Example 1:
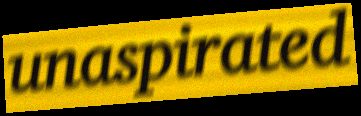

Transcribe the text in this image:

unaspirated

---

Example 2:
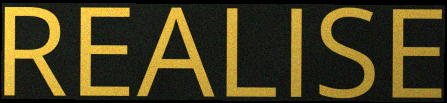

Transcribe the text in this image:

REALISE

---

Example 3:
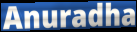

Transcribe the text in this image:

Anuradha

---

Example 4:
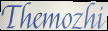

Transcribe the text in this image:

Themozhi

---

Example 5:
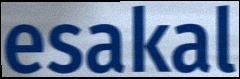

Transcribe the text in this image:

esakal